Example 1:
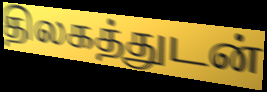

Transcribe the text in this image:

திலகத்துடன்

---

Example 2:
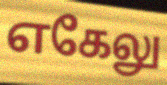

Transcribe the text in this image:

எகேலு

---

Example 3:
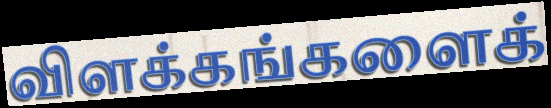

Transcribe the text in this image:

விளக்கங்களைக்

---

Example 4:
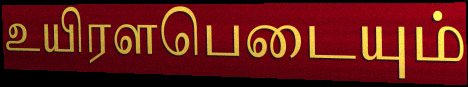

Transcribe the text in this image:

உயிரளபெடையும்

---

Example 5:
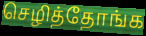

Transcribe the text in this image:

செழித்தோங்க